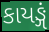
કાયઙ્ગં